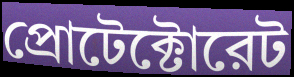
প্রোটেক্টোরেট